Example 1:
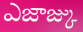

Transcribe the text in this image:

ఎజాజ్కు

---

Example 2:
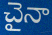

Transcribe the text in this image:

చైనా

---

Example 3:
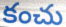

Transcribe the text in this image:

కంచు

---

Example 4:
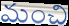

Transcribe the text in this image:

మంచి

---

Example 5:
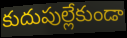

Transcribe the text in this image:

కుదుపుల్లేకుండా